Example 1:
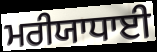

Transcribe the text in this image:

ਮਰੀਯਾਧਾਈ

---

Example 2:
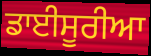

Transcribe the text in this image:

ਡਾਈਸੂਰੀਆ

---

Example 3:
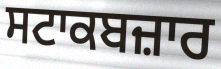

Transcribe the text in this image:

ਸਟਾਕਬਜ਼ਾਰ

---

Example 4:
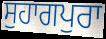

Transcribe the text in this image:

ਸੁਹਾਗਪੁਰਾ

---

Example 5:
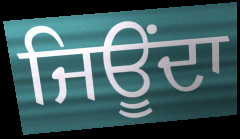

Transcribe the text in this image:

ਜਿਊਂਦਾ